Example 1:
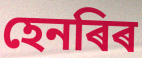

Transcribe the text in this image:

হেনৰিৰ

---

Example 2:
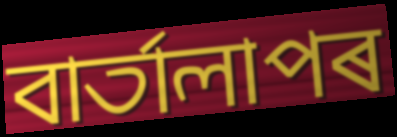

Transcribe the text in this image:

বাৰ্তালাপৰ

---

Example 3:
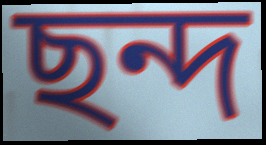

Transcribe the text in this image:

ছন্দ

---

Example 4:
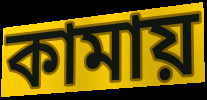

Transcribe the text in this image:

কামায়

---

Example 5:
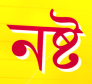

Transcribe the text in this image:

নষ্ট